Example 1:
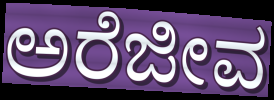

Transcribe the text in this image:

ಅರೆಜೀವ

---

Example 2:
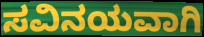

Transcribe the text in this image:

ಸವಿನಯವಾಗಿ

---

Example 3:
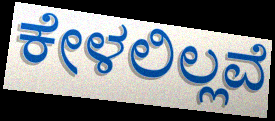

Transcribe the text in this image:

ಕೇಳಲಿಲ್ಲವೆ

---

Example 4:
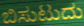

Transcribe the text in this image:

ಬಿಸುಟುದು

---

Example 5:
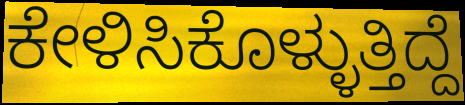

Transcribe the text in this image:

ಕೇಳಿಸಿಕೊಳ್ಳುತ್ತಿದ್ದೆ